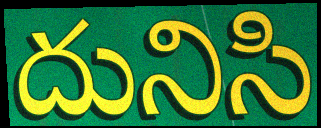
దునిసి